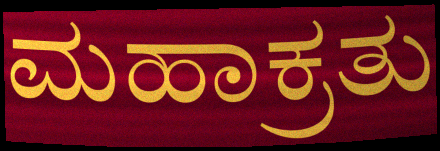
ಮಹಾಕ್ರತು